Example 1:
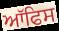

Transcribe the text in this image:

ਆੱਫਿਸ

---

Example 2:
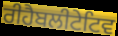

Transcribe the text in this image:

ਰੀਹੈਬਲੀਟੇਟਿਵ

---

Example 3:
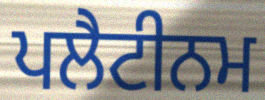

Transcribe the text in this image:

ਪਲੈਟੀਨਮ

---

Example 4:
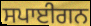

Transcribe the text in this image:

ਸਪਾਈਗਨ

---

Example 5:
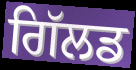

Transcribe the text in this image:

ਗਿੱਲਡ